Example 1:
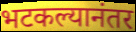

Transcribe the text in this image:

भटकल्यानंतर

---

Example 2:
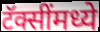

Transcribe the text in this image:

टॅक्सींमध्ये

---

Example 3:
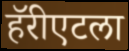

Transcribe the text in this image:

हॅरीएटला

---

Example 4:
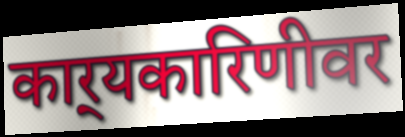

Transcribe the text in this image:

कार्यकारिणीवर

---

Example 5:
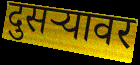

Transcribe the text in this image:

दुसऱ्यावर